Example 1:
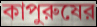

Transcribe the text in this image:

কাপুরুষের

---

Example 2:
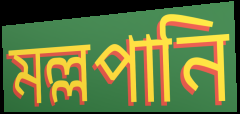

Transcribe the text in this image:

মল্লপানি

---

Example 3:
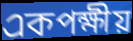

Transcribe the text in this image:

একপক্ষীয়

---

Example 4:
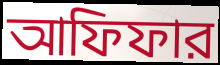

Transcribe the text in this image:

আফিফার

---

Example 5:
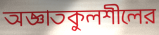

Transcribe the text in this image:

অজ্ঞাতকুলশীলের